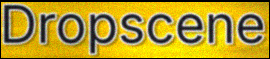
Dropscene